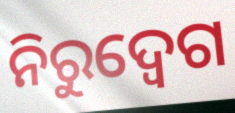
ନିରୁଦ୍ବେଗ